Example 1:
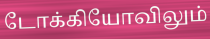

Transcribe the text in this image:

டோக்கியோவிலும்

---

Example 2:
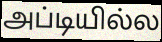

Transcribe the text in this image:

அப்டியில்ல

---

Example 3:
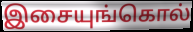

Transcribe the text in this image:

இசையுங்கொல்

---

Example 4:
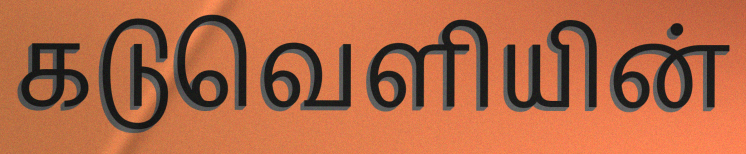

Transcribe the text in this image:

கடுவெளியின்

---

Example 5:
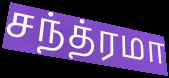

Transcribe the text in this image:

சந்த்ரமா